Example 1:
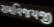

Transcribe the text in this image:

રામવિજયજી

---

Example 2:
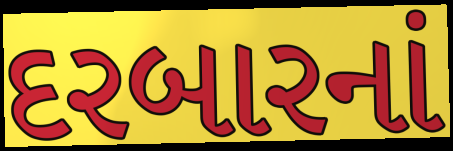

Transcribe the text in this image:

દરબારનાં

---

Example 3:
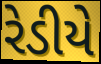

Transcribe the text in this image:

રેડીયે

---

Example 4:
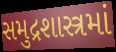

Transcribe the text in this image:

સમુદ્રશાસ્ત્રમાં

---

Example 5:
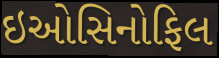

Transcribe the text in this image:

ઇઓસિનોફિલ